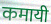
कमायी